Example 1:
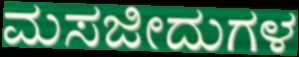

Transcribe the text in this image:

ಮಸಜೀದುಗಳ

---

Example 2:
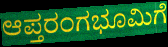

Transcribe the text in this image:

ಆಪ್ತರಂಗಭೂಮಿಗೆ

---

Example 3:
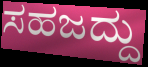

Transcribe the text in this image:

ಸಹಜದ್ದು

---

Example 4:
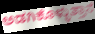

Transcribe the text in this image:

ಅಡಗಿಕೊಳ್ಳುತ್ತಾನೆ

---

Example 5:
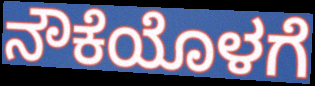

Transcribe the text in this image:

ನೌಕೆಯೊಳಗೆ